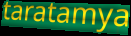
taratamya